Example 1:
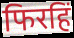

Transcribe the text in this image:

फिरहिं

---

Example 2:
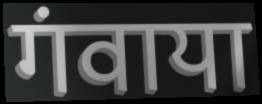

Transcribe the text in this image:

गंवाया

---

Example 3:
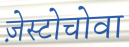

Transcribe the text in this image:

ज़ेस्टोचोवा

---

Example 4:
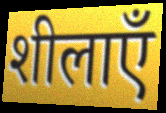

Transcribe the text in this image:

शीलाएँ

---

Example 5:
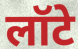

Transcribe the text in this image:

लॉटे